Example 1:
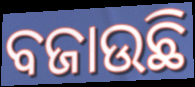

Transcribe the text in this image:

ବଜାଉଛି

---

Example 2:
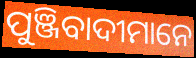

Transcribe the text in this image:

ପୁଞ୍ଜିବାଦୀମାନେ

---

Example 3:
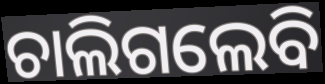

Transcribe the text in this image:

ଚାଲିଗଲେବି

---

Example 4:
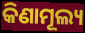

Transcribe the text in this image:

କିଣାମୂଲ୍ୟ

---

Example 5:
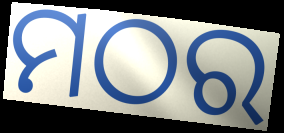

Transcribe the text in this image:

ମଠର